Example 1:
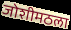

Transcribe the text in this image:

जोशीमठला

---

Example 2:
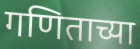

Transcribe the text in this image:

गणिताच्या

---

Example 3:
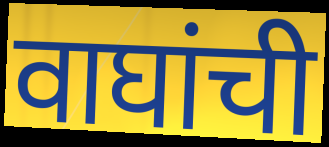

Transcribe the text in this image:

वाघांची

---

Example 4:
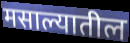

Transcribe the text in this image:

मसाल्यातील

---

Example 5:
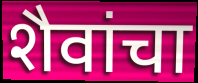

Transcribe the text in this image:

शैवांचा